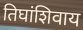
तिघांशिवाय